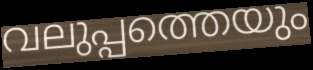
വലുപ്പത്തെയും